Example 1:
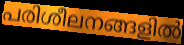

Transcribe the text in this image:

പരിശീലനങ്ങളിൽ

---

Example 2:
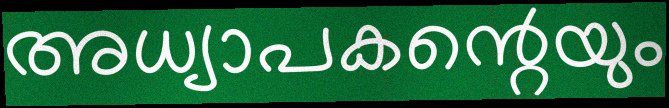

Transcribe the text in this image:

അധ്യാപകന്റെയും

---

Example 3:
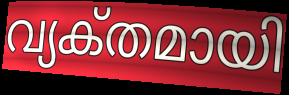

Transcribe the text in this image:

വ്യക്‌തമായി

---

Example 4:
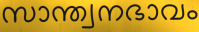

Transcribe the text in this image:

സാന്ത്വനഭാവം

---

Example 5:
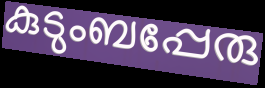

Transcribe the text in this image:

കുടുംബപ്പേരു